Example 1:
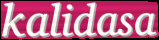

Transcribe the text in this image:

kalidasa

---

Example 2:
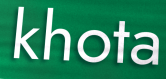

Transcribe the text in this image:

khota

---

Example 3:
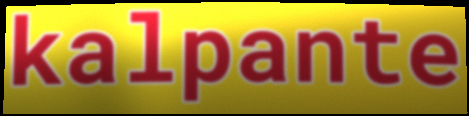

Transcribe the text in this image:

kalpante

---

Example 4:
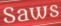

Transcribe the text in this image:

Saws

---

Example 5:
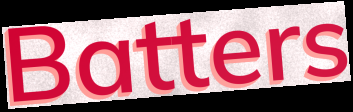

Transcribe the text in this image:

Batters